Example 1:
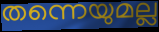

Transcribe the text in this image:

തന്നെയുമല്ല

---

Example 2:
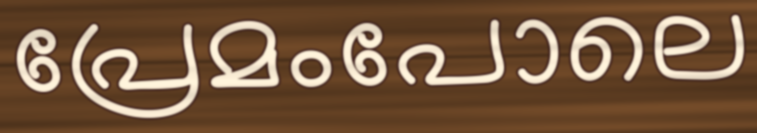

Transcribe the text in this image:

പ്രേമംപോലെ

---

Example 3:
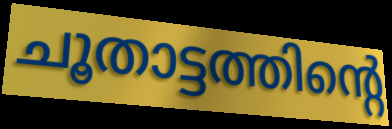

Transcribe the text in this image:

ചൂതാട്ടത്തിന്റെ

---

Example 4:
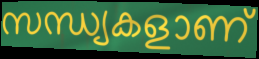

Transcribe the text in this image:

സന്ധ്യകളാണ്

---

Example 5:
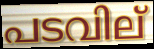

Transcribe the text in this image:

പടവില്